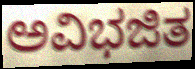
ಅವಿಭಜಿತ